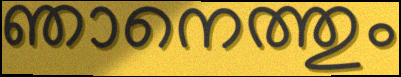
ഞാനെത്തും